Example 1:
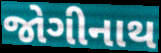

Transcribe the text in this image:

જોગીનાથ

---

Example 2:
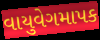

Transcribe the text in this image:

વાયુવેગમાપક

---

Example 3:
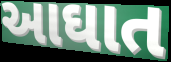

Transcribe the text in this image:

આઘાત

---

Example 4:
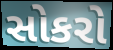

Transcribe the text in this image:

સોકરો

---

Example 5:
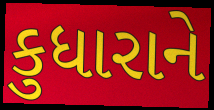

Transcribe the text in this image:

કુધારાને